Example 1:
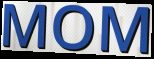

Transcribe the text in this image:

MOM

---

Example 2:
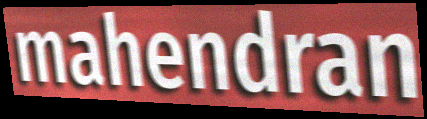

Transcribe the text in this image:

mahendran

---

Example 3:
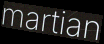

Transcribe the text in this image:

martian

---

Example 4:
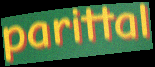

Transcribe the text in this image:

parittal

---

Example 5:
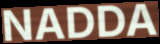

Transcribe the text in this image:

NADDA